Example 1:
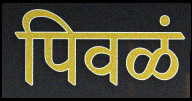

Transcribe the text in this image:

पिवळं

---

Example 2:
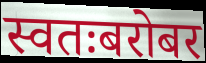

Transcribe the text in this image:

स्वतःबरोबर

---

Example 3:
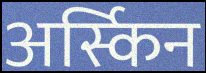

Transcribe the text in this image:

अर्स्किन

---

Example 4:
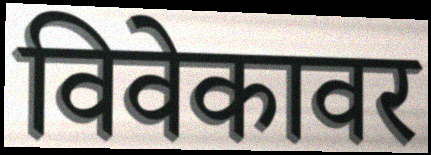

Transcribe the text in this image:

विवेकावर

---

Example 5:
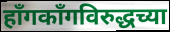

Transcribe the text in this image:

हाँगकाँगविरुद्धच्या